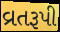
વ્રતરૂપી